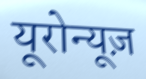
यूरोन्यूज़